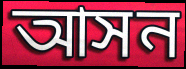
আসন